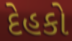
દેહકો